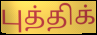
புத்திக்